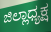
ಜಿಲ್ಲಾಧ್ಯಕ್ಷ